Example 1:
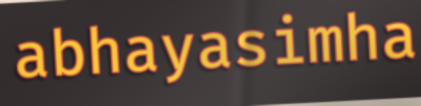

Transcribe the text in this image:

abhayasimha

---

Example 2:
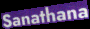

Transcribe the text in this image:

Sanathana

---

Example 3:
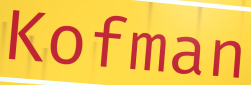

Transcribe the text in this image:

Kofman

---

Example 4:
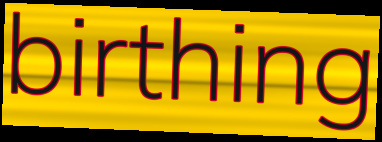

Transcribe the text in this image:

birthing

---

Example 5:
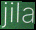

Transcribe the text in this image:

jila